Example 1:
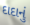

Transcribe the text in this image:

દાદાનું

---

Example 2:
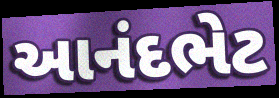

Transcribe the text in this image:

આનંદભેટ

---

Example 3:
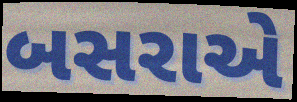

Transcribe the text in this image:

બસરાએ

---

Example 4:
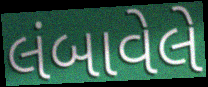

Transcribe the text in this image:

લંબાવેલે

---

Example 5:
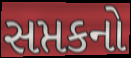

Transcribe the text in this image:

સપ્તકનો